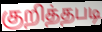
குறித்தபடி